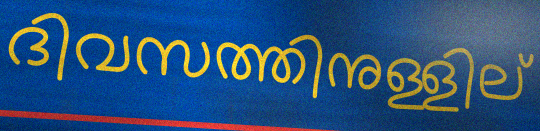
ദിവസത്തിനുള്ളില്